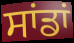
ਸਾਂਡਾਂ